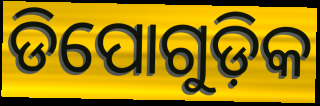
ଡିପୋଗୁଡ଼ିକ